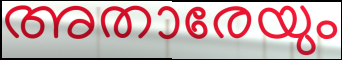
അതാരേയും